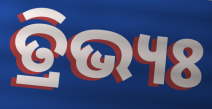
ତ୍ରିଭ୍ୟଃ